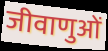
जीवाणुओं